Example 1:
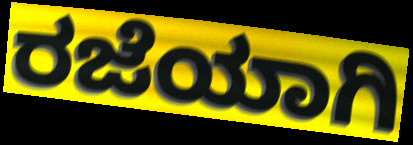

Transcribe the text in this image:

ರಜೆಯಾಗಿ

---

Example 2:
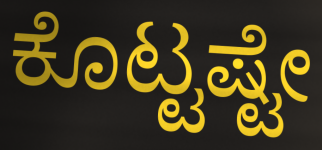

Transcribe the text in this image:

ಕೊಟ್ಟಷ್ಟೇ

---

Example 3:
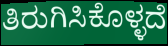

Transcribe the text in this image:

ತಿರುಗಿಸಿಕೊಳ್ಳದೆ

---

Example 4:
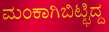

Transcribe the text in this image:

ಮಂಕಾಗಿಬಿಟ್ಟಿದ್ದ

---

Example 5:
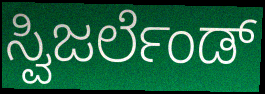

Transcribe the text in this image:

ಸ್ವಿಜರ್ಲೆಂಡ್